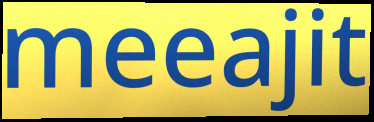
meeajit